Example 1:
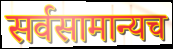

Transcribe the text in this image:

सर्वसामान्यच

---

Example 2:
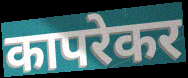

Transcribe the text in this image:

कापरेकर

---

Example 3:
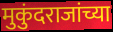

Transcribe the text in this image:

मुकुंदराजांच्या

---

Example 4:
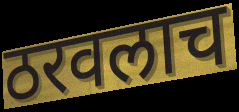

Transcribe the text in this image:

ठरवलाच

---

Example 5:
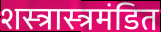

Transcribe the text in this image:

शस्त्रास्त्रमंडित